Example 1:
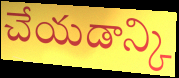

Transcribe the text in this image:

చేయడాన్కి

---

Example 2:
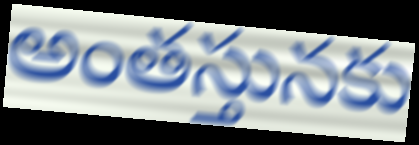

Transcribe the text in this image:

అంతస్తునకు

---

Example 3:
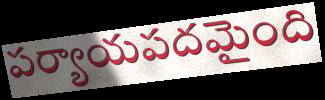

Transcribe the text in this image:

పర్యాయపదమైంది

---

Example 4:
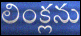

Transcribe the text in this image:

లింక్లను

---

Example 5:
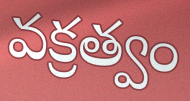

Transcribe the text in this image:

వక్రత్వం